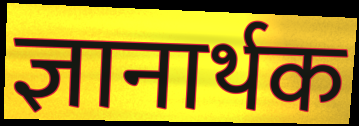
ज्ञानार्थक